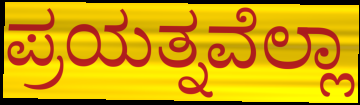
ಪ್ರಯತ್ನವೆಲ್ಲಾ